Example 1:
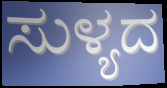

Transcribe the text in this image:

ಸುಳ್ಯದ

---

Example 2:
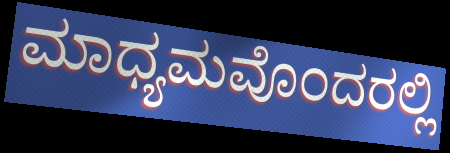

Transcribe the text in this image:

ಮಾಧ್ಯಮವೊಂದರಲ್ಲಿ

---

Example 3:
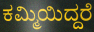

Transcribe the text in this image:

ಕಮ್ಮಿಯಿದ್ದರೆ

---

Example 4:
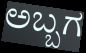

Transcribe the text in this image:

ಅಬ್ಬಗ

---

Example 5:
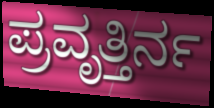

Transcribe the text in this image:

ಪ್ರವೃತ್ತಿರ್ನ